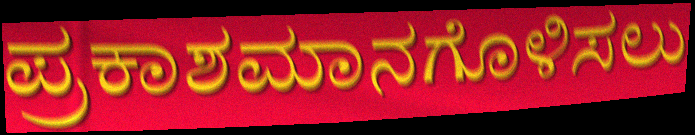
ಪ್ರಕಾಶಮಾನಗೊಳಿಸಲು